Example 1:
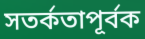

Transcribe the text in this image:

সতর্কতাপূর্বক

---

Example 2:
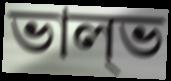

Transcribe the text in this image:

ভাল্ভ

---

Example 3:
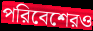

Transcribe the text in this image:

পরিবেশেরও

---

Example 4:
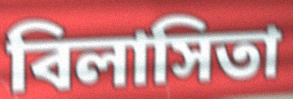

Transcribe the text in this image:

বিলাসিতা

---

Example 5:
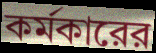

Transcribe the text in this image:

কর্মকারের